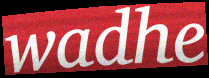
wadhe